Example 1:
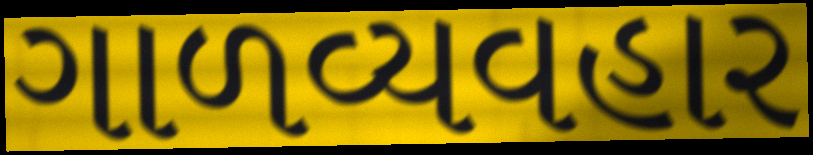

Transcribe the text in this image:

ગાળવ્યવહાર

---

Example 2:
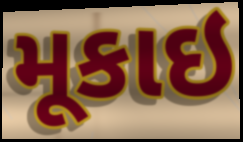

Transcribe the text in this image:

મૂકાઇ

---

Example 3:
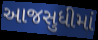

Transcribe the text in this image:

આજસુધીમાં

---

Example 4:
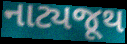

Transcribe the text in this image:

નાટ્યજૂથ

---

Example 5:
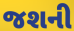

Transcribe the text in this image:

જશની